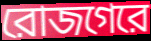
রোজগেরে